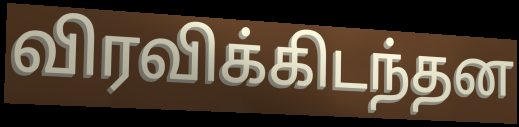
விரவிக்கிடந்தன